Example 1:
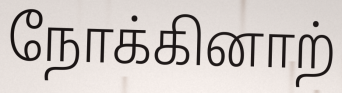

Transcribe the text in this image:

நோக்கினாற்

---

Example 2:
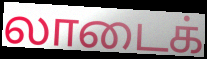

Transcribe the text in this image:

லாடைக்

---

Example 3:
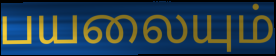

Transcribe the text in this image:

பயலையும்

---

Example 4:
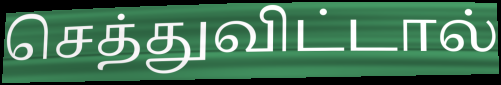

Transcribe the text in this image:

செத்துவிட்டால்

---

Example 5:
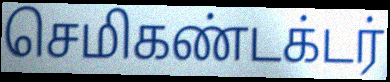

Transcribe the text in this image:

செமிகண்டக்டர்